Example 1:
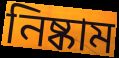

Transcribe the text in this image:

নিষ্কাম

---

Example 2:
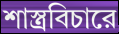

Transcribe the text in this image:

শাস্ত্রবিচারে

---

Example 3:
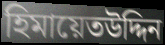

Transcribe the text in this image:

হিমায়েতউদ্দিন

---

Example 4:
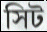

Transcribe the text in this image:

সিট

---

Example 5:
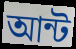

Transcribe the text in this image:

আন্ট